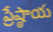
ప్రేష్ఠాయ